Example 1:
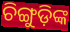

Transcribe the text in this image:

ଚିଙ୍ଗୁଡ଼ିଙ୍କ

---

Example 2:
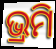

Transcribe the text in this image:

ଭ୍ରମି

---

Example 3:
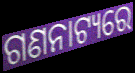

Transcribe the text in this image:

ଗଣନାଟ୍ୟରେ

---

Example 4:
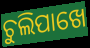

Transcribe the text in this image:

ଚୁଲିପାଖେ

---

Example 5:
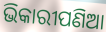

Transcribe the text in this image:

ଭିକାରୀପଣିଆ